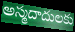
అస్మదాదులకు